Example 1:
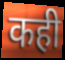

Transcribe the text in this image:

कही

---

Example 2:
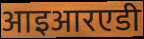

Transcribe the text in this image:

आइआरएडी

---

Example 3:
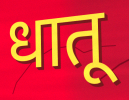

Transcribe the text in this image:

धातू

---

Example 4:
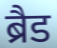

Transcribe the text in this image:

ब्रैड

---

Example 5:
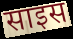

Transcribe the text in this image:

साइस